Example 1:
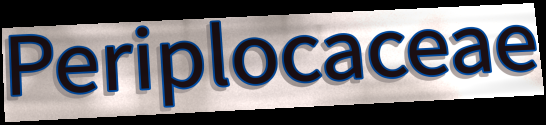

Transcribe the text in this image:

Periplocaceae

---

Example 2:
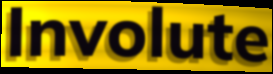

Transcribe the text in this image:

Involute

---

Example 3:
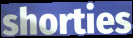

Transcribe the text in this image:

shorties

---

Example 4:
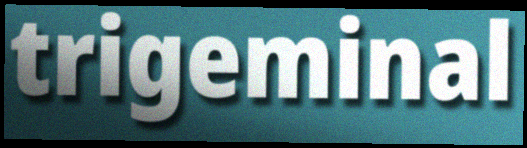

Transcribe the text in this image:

trigeminal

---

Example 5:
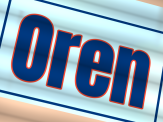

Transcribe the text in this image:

Oren